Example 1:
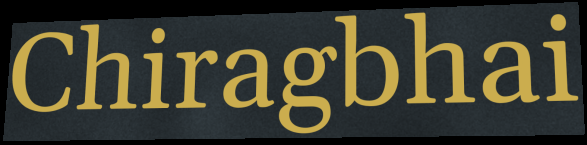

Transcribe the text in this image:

Chiragbhai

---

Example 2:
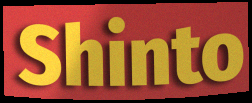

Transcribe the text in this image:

Shinto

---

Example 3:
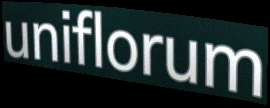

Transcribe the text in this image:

uniflorum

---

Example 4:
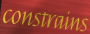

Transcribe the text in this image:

constrains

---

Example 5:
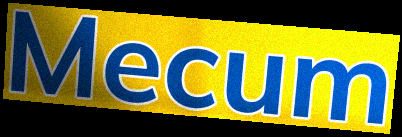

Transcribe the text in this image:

Mecum